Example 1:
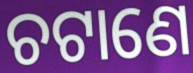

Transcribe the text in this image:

ଚଟାଣେ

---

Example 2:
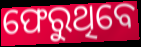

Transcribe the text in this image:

ଫେରୁଥିବେ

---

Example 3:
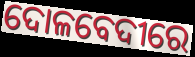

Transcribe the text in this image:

ଦୋଳବେଦୀରେ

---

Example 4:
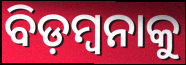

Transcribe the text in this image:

ବିଡ଼ମ୍ୱନାକୁ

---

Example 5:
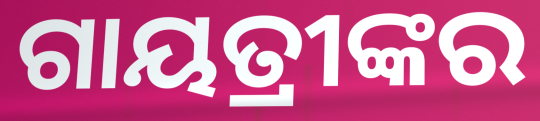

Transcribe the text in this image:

ଗାୟତ୍ରୀଙ୍କର